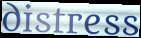
distress